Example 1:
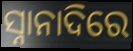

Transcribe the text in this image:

ସ୍ନାନାଦିରେ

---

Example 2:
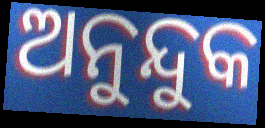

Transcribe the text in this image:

ଅନୁନ୍ଦୁକ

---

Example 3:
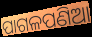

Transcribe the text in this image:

ପାଗଳପଣିଆ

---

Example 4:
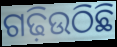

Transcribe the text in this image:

ଗଢ଼ିଉଠିଛି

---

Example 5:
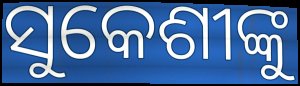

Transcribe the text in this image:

ସୁକେଶୀଙ୍କୁ